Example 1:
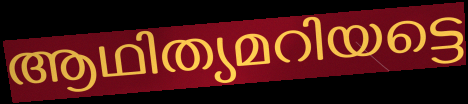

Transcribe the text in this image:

ആഥിത്യമറിയട്ടെ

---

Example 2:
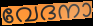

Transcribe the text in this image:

വേദനാ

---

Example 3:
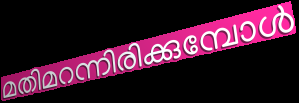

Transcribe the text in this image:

മതിമറന്നിരിക്കുമ്പോൾ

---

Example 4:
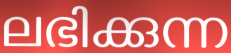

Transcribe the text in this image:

ലഭിക്കുന്ന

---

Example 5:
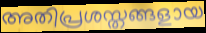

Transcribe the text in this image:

അതിപ്രശസ്തങ്ങളായ